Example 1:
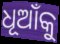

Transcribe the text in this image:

ଧୂଆଁକୁ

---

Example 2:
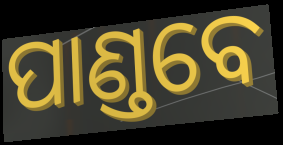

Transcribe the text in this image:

ପାଣ୍ଡବେ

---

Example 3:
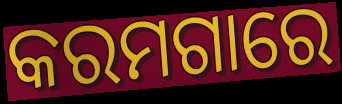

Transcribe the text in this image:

କରମଗାରେ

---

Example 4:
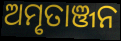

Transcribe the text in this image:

ଅମୃତାଞ୍ଜନ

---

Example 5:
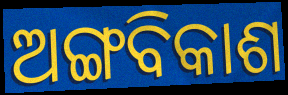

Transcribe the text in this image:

ଅଙ୍ଗବିକାଶ